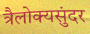
त्रैलोक्यसुंदर